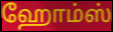
ஹோம்ஸ்